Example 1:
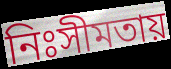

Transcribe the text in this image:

নিঃসীমতায়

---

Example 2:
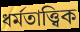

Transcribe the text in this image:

ধর্মতাত্ত্বিক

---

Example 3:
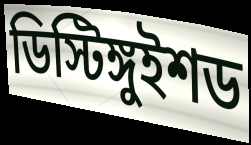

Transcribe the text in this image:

ডিস্টিঙ্গুইশড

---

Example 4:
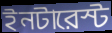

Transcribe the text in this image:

ইনটারেস্ট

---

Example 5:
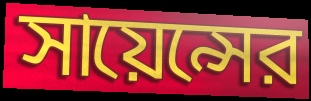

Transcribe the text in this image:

সায়েন্সের